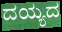
ದಯ್ಯದ